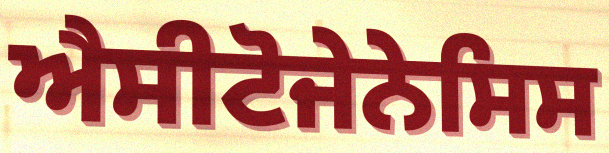
ਐਸੀਟੋਜੇਨੇਸਿਸ